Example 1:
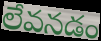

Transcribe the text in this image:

లేవనడం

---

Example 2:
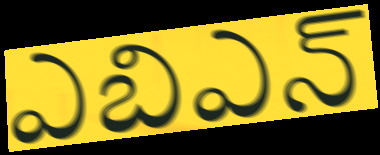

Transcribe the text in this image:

ఎబిఎన్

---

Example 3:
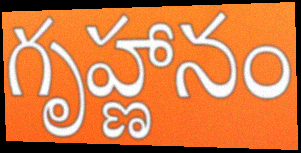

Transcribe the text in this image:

గృహ్ణానం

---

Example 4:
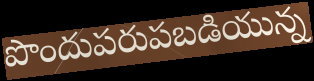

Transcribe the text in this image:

పొందుపరుపబడియున్న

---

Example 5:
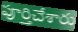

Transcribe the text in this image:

పూర్తిచేశారు